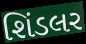
શિંડલર